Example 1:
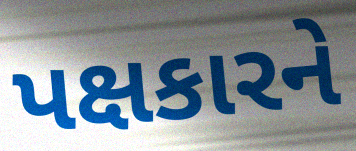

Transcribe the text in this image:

પક્ષકારને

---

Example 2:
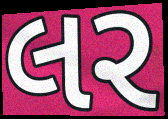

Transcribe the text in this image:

લર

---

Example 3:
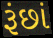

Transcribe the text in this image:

રૂંછાં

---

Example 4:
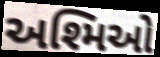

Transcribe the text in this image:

અશ્મિઓ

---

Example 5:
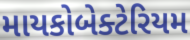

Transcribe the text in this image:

માયકોબેક્ટેરિયમ